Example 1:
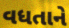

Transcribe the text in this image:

વધતાને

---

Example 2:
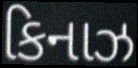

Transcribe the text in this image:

કિનાઝ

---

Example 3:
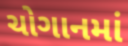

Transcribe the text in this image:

ચોગાનમાં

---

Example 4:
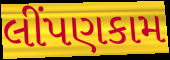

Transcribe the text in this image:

લીંપણકામ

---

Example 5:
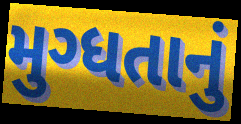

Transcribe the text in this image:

મુગ્ધતાનું